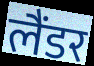
लैंडर